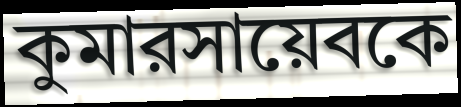
কুমারসায়েবকে